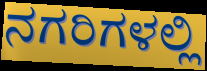
ನಗರಿಗಳಲ್ಲಿ